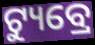
ଟ୍ୟୁବ୍ରେ